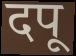
दपू